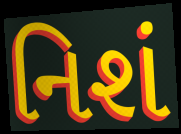
નિશં